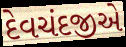
દેવચંદજીએ